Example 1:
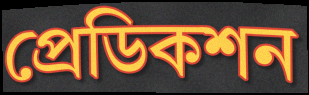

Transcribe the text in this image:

প্রেডিকশন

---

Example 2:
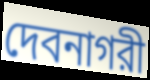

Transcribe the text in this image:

দেবনাগরী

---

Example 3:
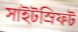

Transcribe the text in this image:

সাইটস্রিফট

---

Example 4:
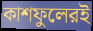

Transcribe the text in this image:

কাশফুলেরই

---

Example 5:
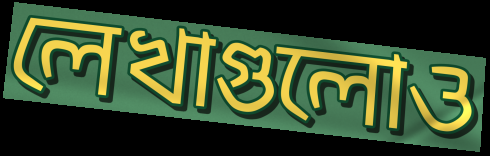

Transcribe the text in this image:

লেখাগুলোও